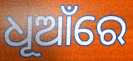
ଧୂଆଁରେ